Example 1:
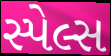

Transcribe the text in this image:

સ્પેલ્સ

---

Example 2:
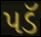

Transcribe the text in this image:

પડૅ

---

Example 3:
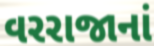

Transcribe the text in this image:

વરરાજાનાં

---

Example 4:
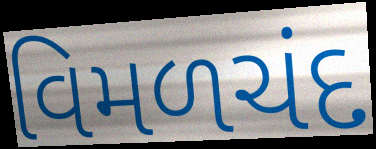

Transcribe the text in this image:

વિમળચંદ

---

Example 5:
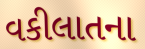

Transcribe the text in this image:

વકીલાતના